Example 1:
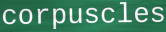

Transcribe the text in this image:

corpuscles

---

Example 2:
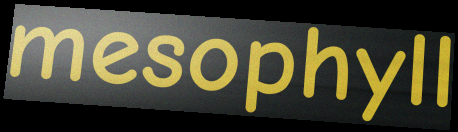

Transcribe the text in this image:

mesophyll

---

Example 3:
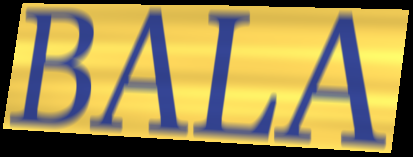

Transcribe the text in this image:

BALA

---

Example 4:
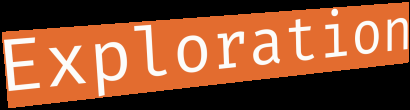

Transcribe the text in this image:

Exploration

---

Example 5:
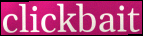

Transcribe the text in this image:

clickbait